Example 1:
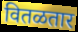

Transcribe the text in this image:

वितळतार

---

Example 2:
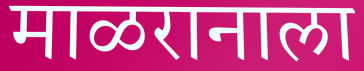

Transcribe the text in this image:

माळरानाला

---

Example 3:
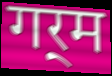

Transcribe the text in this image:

गर्म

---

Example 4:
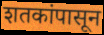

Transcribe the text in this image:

शतकांपासून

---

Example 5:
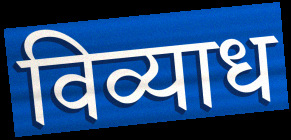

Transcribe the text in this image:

विव्याध